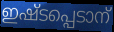
ഇഷ്ടപ്പെടാന്